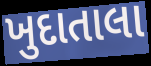
ખુદાતાલા